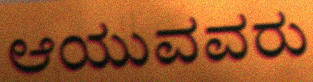
ಆಯುವವರು